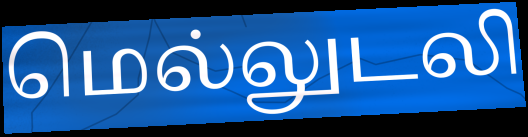
மெல்லுடலி